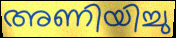
അണിയിച്ചു